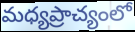
మధ్యప్రాచ్యంలో